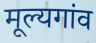
मूल्यगांव